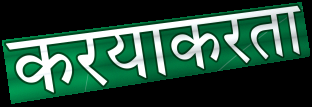
करयाकरता